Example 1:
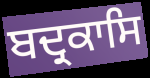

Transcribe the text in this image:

ਬਦ੍ਰਕਾਸਿ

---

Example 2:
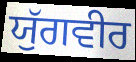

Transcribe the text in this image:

ਯੁੱਗਵੀਰ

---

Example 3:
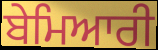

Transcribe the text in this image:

ਬੇਮਿਆਰੀ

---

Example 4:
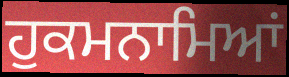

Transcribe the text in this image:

ਹੁਕਮਨਾਮਿਆਂ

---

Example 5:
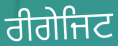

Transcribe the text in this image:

ਰੀਗੇਜਿਟ